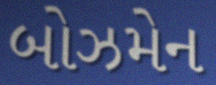
બોઝમેન